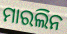
ମାରଲିନ